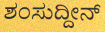
ಶಂಸುದ್ದೀನ್